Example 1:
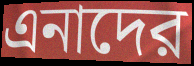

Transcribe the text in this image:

এনাদের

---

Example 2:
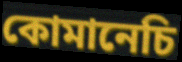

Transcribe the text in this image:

কোমানেচি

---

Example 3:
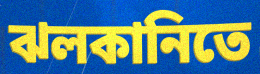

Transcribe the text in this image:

ঝলকানিতে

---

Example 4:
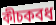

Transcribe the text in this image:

কীচকবধ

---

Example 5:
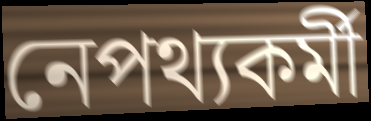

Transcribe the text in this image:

নেপথ্যকর্মী